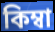
কিম্বা